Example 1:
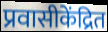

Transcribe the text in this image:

प्रवासीकेंद्रित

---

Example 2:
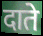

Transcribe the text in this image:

दाते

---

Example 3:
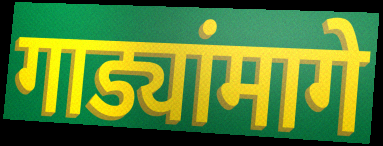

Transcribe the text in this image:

गाड्यांमागे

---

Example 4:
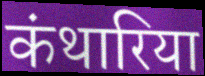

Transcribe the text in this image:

कंथारिया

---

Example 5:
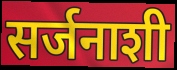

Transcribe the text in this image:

सर्जनाशी